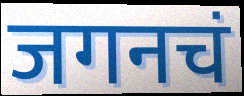
जगनचं